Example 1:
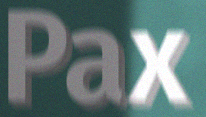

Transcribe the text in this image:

Pax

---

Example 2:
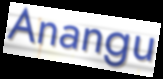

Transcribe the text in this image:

Anangu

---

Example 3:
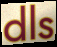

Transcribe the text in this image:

dls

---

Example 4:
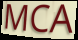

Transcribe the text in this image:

MCA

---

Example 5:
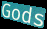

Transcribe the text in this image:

Gods